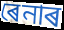
ৰেনাৰ